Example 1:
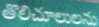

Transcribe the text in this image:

తొలిచూలులను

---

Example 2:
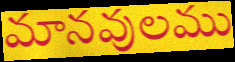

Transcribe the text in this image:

మానవులము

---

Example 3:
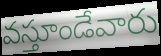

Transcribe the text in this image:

వస్తూండేవారు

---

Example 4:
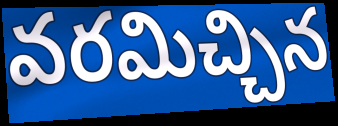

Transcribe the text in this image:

వరమిచ్చిన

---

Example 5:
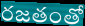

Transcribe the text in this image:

రజతంతో